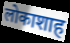
लोकाशाह